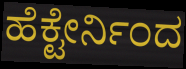
ಹೆಕ್ಟೇರ್ನಿಂದ